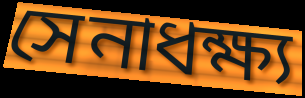
সেনাধক্ষ্য